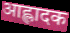
आह्लादक